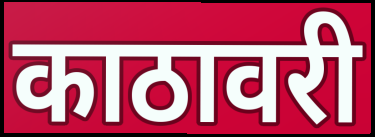
काठावरी